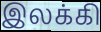
இலக்கி